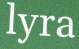
lyra